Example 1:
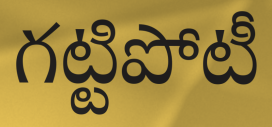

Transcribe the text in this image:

గట్టిపోటీ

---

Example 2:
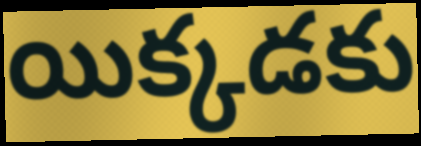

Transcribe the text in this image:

యిక్కడకు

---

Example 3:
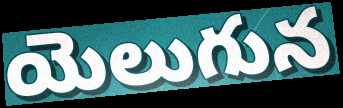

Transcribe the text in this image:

యెలుగున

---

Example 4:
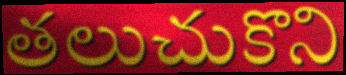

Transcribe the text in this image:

తలుచుకొని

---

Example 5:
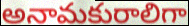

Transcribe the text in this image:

అనామకురాలిగా